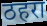
ठहरा